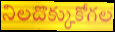
నిలదొక్కుకోగల